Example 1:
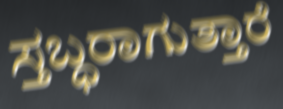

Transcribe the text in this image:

ಸ್ತಬ್ಧರಾಗುತ್ತಾರೆ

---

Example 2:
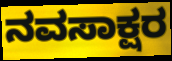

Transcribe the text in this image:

ನವಸಾಕ್ಷರ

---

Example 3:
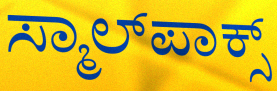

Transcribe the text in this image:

ಸ್ಮಾಲ್‌ಪಾಕ್ಸ್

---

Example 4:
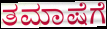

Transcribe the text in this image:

ತಮಾಷೆಗೆ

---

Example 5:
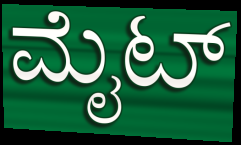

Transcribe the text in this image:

ಮೈಟ್